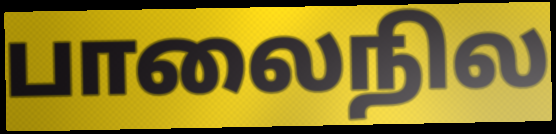
பாலைநில